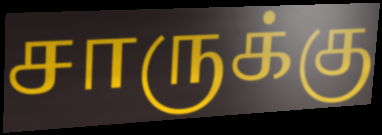
சாருக்கு